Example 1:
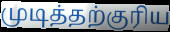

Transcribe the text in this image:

முடித்தற்குரிய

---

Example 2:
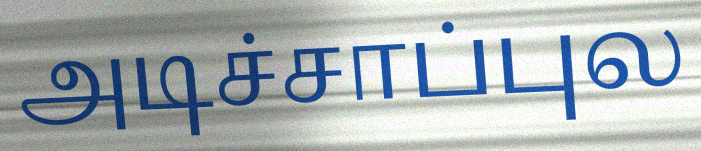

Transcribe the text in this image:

அடிச்சாப்புல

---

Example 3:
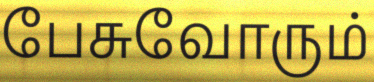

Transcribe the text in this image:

பேசுவோரும்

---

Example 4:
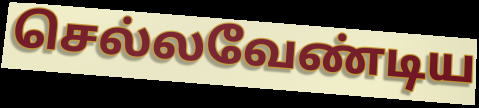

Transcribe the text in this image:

செல்லவேண்டிய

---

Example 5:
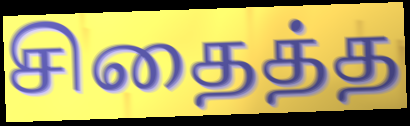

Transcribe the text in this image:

சிதைத்த